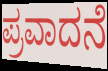
ಪ್ರವಾದನೆ